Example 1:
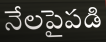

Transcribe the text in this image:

నేలపైపడి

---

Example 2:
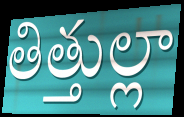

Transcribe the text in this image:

తిత్తుల్లా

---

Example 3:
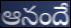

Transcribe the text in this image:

ఆనందే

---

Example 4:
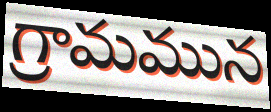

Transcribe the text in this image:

గ్రామమున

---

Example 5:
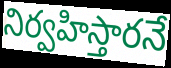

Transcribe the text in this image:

నిర్వహిస్తారనే